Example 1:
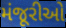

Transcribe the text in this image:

મંજૂરીઓ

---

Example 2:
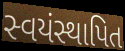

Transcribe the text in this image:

સ્વયંસ્થાપિત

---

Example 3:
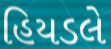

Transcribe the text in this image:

હિયડલે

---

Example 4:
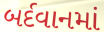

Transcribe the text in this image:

બર્દવાનમાં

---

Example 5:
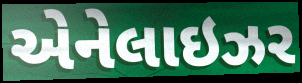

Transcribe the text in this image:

એનેલાઇઝર